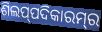
ଶିଲପ୍‍ପଦିକାରମ୍‍ର